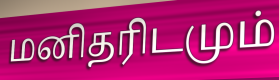
மனிதரிடமும்